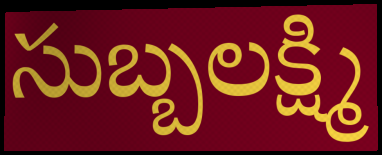
సుబ్బలక్ష్మి